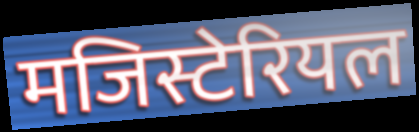
मजिस्टेरियल